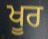
ਖੂਰ